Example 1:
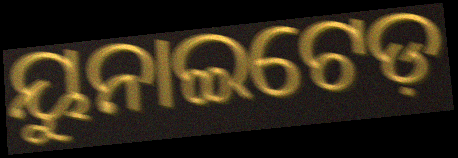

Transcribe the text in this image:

ୟୁନାଇଟେଡ଼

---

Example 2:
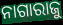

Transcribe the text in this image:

ନାଗାରାଜୁ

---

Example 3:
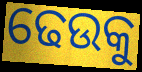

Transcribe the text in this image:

ଢେଉକୁ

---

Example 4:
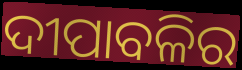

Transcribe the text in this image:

ଦୀପାବଳିର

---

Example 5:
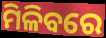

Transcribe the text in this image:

ମିଳିବରେ